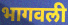
भागवली